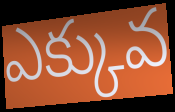
ఎక్కువ